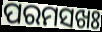
ପରମସଖଃ